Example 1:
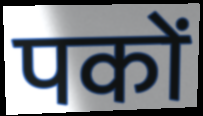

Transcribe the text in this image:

पकों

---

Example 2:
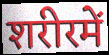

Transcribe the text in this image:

शरीरमें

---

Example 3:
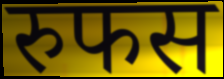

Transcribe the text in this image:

रुफस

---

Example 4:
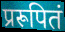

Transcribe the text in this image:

प्ररूपितं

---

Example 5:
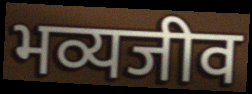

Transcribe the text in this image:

भव्यजीव